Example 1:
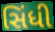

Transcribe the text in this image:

સિંધી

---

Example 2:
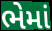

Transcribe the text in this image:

ભેમાં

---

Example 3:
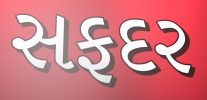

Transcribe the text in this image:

સફદર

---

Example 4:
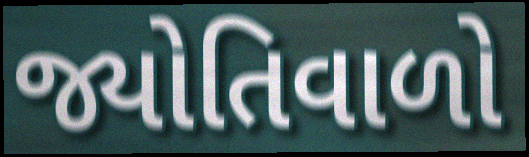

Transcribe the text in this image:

જ્યોતિવાળો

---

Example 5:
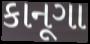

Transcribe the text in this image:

કાનૂગા